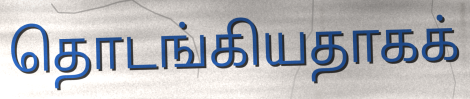
தொடங்கியதாகக்